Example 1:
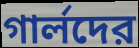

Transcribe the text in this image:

গার্লদের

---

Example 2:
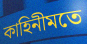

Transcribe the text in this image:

কাহিনীমতে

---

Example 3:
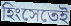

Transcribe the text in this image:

হিংসেতেই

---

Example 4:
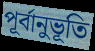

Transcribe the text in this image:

পূর্বানুভূতি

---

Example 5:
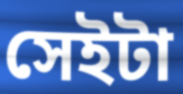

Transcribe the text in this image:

সেইটা